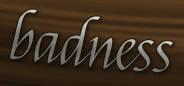
badness